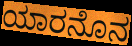
ಯಾರನೊನ